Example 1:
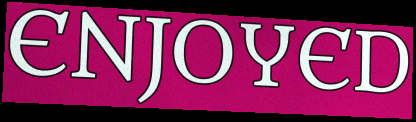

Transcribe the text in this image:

ENJOYED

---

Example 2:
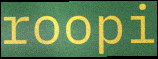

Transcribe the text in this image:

roopi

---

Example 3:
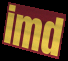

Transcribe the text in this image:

imd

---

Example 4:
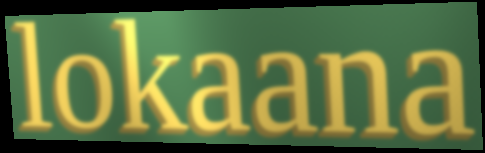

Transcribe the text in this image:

lokaana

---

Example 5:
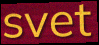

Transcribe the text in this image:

svet